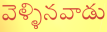
వెళ్ళినవాడు